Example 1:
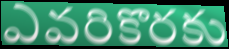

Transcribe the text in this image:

ఎవరికొరకు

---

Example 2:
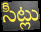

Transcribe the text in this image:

సీట్లు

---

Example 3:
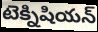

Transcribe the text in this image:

టెక్నిషియన్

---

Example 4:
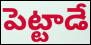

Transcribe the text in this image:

పెట్టాడే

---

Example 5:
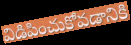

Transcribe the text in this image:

విడిపించుకోవడానికి